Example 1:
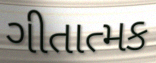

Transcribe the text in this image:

ગીતાત્મક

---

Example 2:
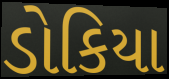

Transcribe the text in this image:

ડોકિયા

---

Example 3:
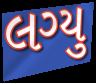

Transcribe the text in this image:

લગ્યુ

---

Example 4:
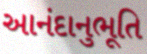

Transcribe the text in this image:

આનંદાનુભૂતિ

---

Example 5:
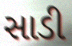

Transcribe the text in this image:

સાડી